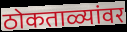
ठोकताळ्यांवर